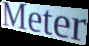
Meter